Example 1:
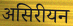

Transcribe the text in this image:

असिरीयन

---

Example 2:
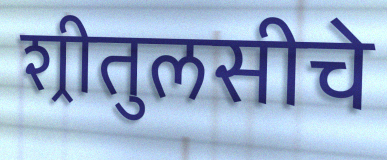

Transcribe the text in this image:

श्रीतुलसीचे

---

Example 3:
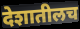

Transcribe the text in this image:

देशातीलच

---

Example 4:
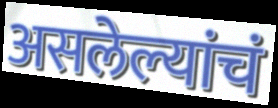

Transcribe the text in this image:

असलेल्यांचं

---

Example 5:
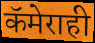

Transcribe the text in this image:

कॅमेराही